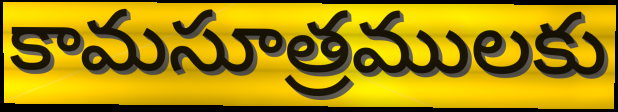
కామసూత్రములకు